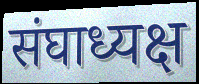
संघाध्यक्ष